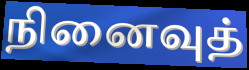
நினைவுத்